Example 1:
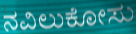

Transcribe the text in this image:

ನವಿಲುಕೋಸು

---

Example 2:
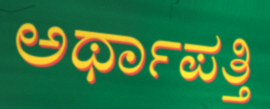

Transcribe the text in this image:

ಅರ್ಥಾಪತ್ತಿ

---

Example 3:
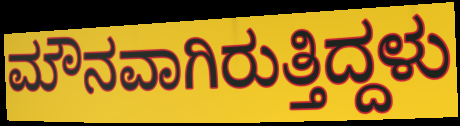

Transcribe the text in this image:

ಮೌನವಾಗಿರುತ್ತಿದ್ದಳು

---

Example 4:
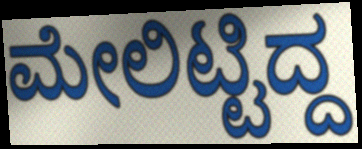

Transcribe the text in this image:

ಮೇಲಿಟ್ಟಿದ್ದ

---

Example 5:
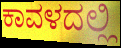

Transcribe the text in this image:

ಕಾವಳದಲ್ಲಿ